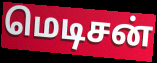
மெடிசன்